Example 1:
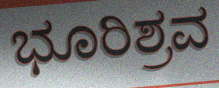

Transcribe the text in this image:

ಭೂರಿಶ್ರವ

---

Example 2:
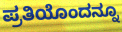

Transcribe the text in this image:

ಪ್ರತಿಯೊಂದನ್ನೂ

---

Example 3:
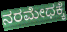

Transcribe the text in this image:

ನರಮೇಧಕ್ಕೆ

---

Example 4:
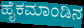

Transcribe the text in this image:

ಹೈಕಮಾಂಡಿನ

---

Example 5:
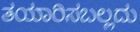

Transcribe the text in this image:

ತಯಾರಿಸಬಲ್ಲದು